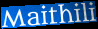
Maithili